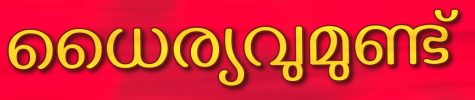
ധൈര്യവുമുണ്ട്